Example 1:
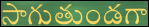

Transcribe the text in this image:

సాగుతుండగా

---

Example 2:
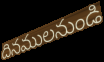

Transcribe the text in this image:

దినములనుండి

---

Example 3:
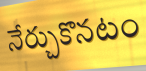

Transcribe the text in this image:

నేర్చుకొనటం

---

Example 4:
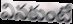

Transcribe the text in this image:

వినకుంటే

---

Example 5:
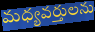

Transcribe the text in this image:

మధ్యవర్తులను